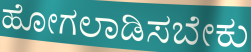
ಹೋಗಲಾಡಿಸಬೇಕು